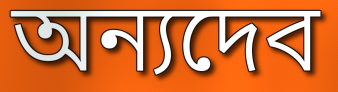
অন্যদেব